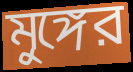
মুঙ্গের